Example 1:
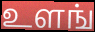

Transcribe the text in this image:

உளங்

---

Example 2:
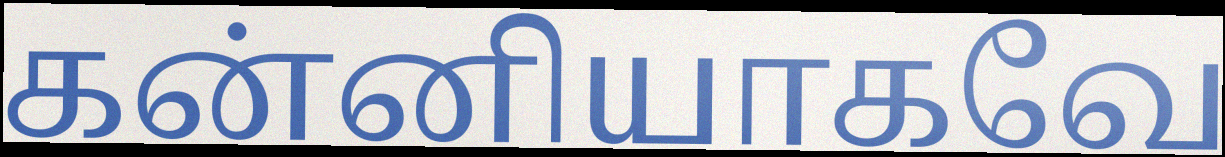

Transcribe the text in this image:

கன்னியாகவே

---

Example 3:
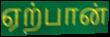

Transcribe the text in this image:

ஏற்பான்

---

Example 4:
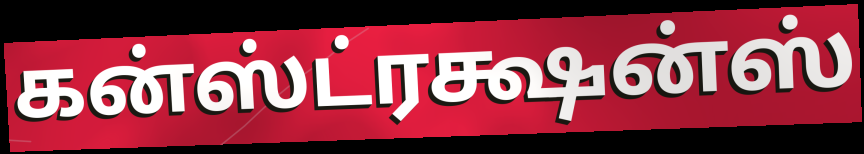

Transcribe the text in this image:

கன்ஸ்ட்ரக்ஷன்ஸ்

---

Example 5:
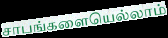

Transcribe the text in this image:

சாபங்களையெல்லாம்